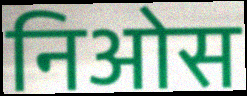
निओस